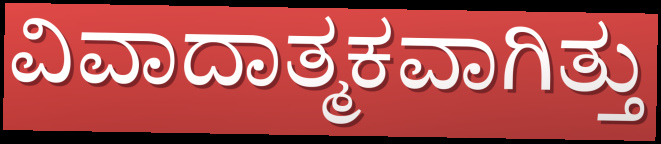
ವಿವಾದಾತ್ಮಕವಾಗಿತ್ತು